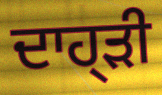
ਦਾਹ੍ੜੀ